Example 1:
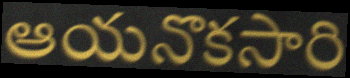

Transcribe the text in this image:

ఆయనొకసారి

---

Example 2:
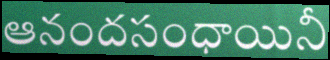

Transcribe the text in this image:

ఆనందసంధాయినీ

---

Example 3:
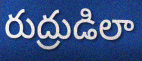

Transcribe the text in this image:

రుద్రుడిలా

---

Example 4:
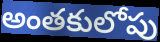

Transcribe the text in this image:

అంతకులోపు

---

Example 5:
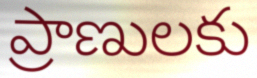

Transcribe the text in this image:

ప్రాణులకు